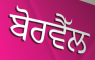
ਬੋਰਵੈੱਲ